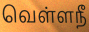
வெள்ளநீ